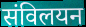
संविलयन